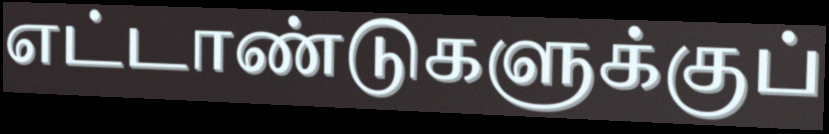
எட்டாண்டுகளுக்குப்